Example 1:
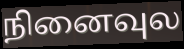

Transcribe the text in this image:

நினைவுல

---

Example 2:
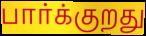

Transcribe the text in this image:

பார்க்குறது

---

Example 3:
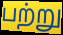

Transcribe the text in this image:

பற்று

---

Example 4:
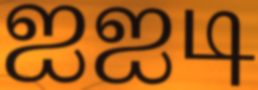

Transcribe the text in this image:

ஐஐடி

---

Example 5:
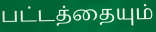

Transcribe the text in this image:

பட்டத்தையும்